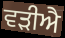
ਵੜੀਐ